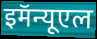
इमॅन्यूएल